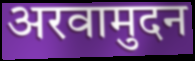
अरवामुदन